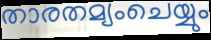
താരതമ്യംചെയ്യും